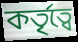
কর্তৃত্বে